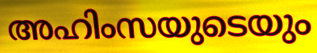
അഹിംസയുടെയും